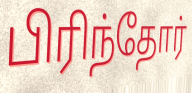
பிரிந்தோர்